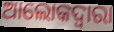
ଆଲୋକଦ୍ୱାରା